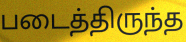
படைத்திருந்த